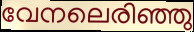
വേനലെരിഞ്ഞു